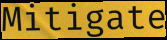
Mitigate